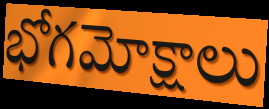
భోగమోక్షాలు